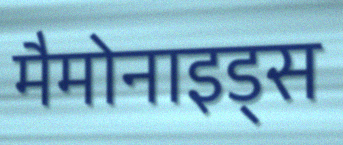
मैमोनाइड्स